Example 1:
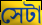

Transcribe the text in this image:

সেটা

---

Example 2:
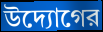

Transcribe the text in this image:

উদ্যোগের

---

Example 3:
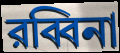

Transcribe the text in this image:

রব্বিনা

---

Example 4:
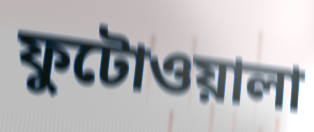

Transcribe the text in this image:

ফুটোওয়ালা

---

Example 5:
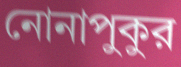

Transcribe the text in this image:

নোনাপুকুর